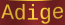
Adige